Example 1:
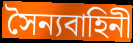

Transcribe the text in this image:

সৈন্যবাহিনী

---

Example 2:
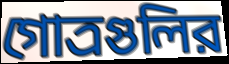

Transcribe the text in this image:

গোত্রগুলির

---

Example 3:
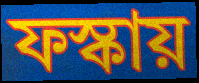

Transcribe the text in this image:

ফস্কায়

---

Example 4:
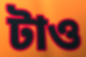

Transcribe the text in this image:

টাও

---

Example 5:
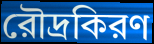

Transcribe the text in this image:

রৌদ্রকিরণ